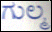
ಗುಲ್ಮ